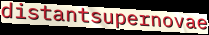
distantsupernovae